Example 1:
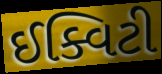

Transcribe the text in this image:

ઈક્વિટી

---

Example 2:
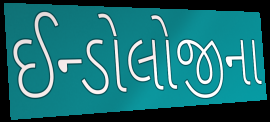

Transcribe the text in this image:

ઈન્ડોલોજીના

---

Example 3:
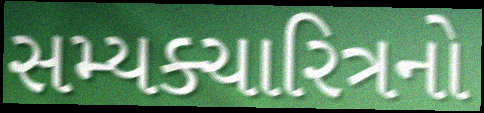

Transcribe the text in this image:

સમ્યક્ચારિત્રનો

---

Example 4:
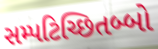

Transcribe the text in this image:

સમ્પટિચ્છિતબ્બો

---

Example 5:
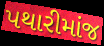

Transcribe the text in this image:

પથારીમાંજ